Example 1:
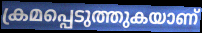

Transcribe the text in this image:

ക്രമപ്പെടുത്തുകയാണ്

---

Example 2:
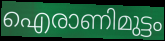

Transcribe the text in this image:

ഐരാണിമുട്ടം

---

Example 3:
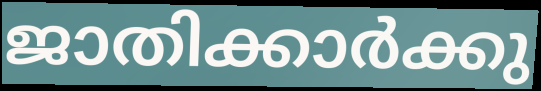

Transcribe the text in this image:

ജാതിക്കാർക്കു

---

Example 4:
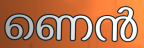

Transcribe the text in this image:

ണെൻ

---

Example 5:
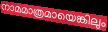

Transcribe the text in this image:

നാമമാത്രമായെങ്കിലും